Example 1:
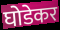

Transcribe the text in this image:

घोडेकर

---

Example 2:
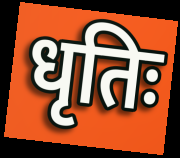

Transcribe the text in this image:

धृतिः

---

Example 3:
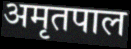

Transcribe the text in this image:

अमृतपाल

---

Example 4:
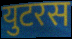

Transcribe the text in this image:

युटरस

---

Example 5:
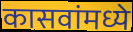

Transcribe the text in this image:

कासवांमध्ये